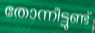
തോന്നീട്ടുണ്ട്